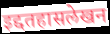
इद्दतहासलेखन